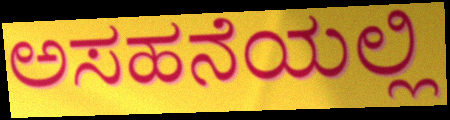
ಅಸಹನೆಯಲ್ಲಿ